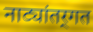
नाट्यांतर्गत